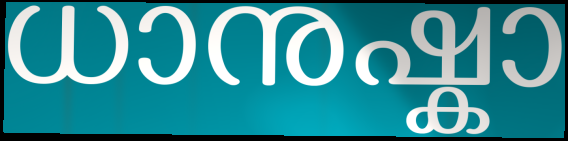
ധാനുഷ്കാ